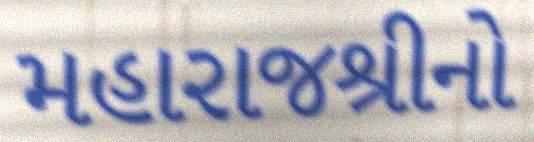
મહારાજશ્રીનો